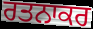
ਰਤਨਾਕਰ